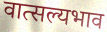
वात्सल्यभाव